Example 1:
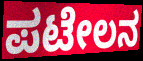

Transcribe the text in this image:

ಪಟೇಲನ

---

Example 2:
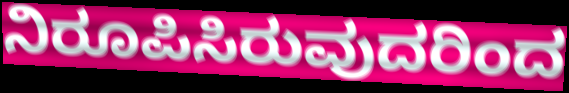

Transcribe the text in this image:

ನಿರೂಪಿಸಿರುವುದರಿಂದ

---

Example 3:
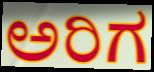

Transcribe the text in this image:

ಅರಿಗ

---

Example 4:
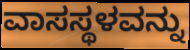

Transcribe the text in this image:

ವಾಸಸ್ಥಳವನ್ನು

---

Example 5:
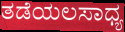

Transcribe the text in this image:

ತಡೆಯಲಸಾಧ್ಯ